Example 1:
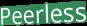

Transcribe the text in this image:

Peerless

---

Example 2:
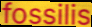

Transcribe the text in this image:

fossilis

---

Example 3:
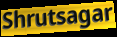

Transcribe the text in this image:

Shrutsagar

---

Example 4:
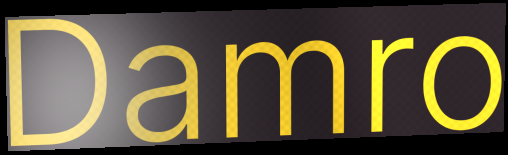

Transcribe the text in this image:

Damro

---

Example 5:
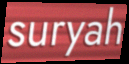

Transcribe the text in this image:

suryah